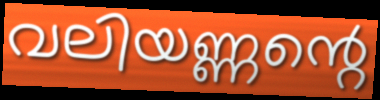
വലിയണ്ണന്റെ